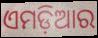
ଏମଡ଼ିଆର